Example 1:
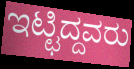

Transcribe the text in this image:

ಇಟ್ಟಿದ್ದವರು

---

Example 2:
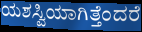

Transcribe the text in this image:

ಯಶಸ್ವಿಯಾಗಿತ್ತೆಂದರೆ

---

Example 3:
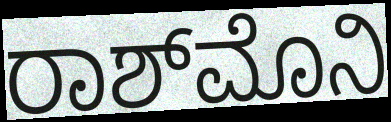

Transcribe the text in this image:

ರಾಶ್‌ಮೊನಿ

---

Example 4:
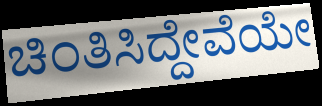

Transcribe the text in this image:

ಚಿಂತಿಸಿದ್ದೇವೆಯೇ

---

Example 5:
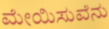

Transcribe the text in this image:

ಮೇಯಿಸುವೆನು